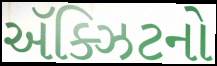
ઍક્ઝિટનો